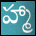
హ్మా